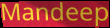
Mandeep